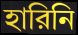
হারিনি